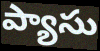
ప్యాసు